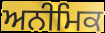
ਅਨੀਮਿਕ